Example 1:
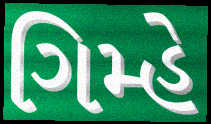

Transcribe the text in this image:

ગિમ્હે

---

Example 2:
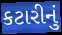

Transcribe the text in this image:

કટારીનું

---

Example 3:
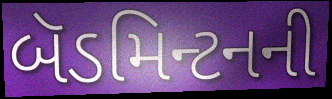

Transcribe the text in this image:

બૅડમિન્ટનની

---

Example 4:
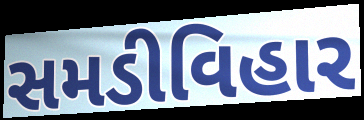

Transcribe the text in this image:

સમડીવિહાર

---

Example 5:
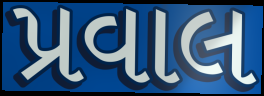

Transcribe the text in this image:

પ્રવાલ